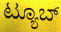
ಟ್ಯೂಬ್